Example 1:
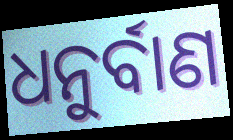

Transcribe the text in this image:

ଧନୁର୍ବାଣ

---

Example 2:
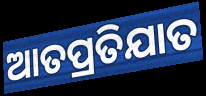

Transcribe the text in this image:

ଆତପ୍ରତିଯାତ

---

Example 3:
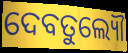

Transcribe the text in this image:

ଦେବତୁଲ୍ୟୌ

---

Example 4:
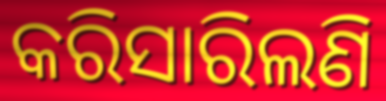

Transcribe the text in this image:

କରିସାରିଲଣି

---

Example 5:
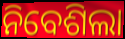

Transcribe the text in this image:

ନିବେଶିଲା